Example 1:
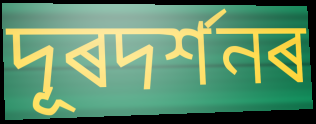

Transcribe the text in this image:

দূৰদৰ্শনৰ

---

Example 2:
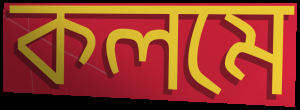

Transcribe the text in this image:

কলমে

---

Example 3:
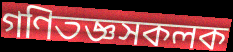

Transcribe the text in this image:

গণিতজ্ঞসকলক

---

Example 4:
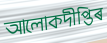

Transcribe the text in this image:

আলোকদীপ্তিৰ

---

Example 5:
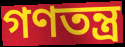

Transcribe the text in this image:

গণতন্ত্ৰ